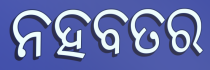
ନହବତର